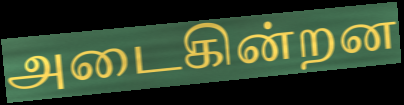
அடைகின்றன